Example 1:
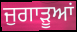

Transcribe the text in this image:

ਜੁਗਾੜੂਆਂ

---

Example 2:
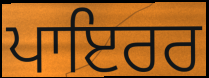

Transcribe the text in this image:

ਪਾਇਰਰ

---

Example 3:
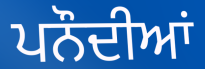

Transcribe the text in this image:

ਪਨੌਦੀਆਂ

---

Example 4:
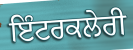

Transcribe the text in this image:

ਇੰਟਰਕਲੇਰੀ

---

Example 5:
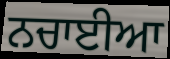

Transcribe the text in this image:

ਨਚਾਈਆ